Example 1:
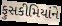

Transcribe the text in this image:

ફુસકીમિયાંને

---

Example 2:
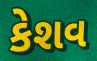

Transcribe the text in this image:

કેશવ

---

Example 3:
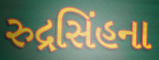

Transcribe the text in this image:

રુદ્રસિંહના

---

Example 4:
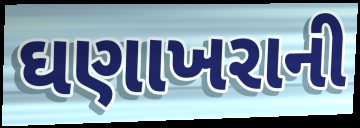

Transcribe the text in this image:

ઘણાખરાની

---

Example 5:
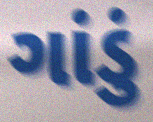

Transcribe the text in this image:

ગાંડું